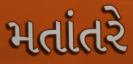
મતાંતરે